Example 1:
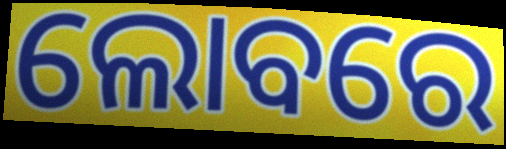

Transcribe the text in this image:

ଲୋବରେ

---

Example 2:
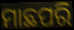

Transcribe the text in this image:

ମାଛପରି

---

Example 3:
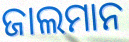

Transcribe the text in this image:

ଜାଲମାନ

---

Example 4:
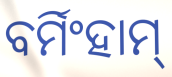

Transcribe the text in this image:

ବର୍ମିଂହାମ୍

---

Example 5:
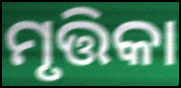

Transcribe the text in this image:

ମୃତ୍ତିକା